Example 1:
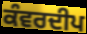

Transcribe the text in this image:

ਕੰਵਰਦੀਪ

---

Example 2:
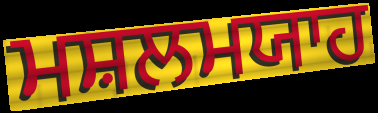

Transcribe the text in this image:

ਮਸ਼ਲਮਯਾਹ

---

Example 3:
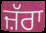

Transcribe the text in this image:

ਜ਼ੱਰਾ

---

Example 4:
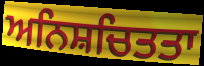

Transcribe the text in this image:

ਅਨਿਸ਼ਚਿਤਤਾ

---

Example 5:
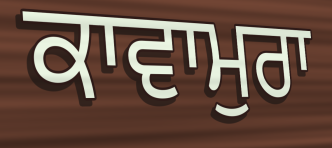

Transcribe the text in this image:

ਕਾਵਾਮੁਰਾ